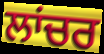
ਲਾਂਚਰ